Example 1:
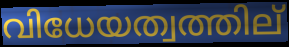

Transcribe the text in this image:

വിധേയത്വത്തില്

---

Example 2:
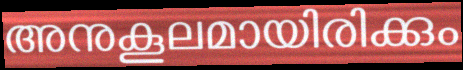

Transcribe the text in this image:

അനുകൂലമായിരിക്കും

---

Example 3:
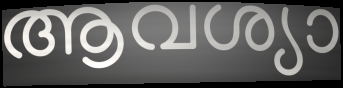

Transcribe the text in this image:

ആവശ്യാ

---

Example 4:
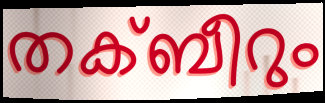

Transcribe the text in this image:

തക്ബീറും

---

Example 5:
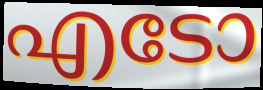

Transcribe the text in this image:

എടോ